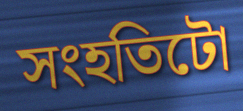
সংহতিটো